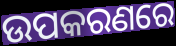
ଉପକରଣରେ